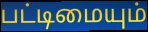
பட்டிமையும்